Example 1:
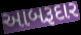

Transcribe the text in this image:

આબરૂદાર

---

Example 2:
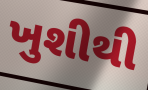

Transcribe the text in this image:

ખુશીથી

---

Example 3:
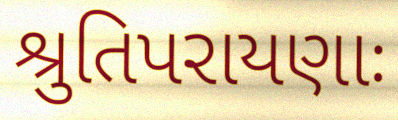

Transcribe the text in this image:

શ્રુતિપરાયણાઃ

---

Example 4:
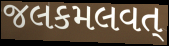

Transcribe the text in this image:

જલકમલવત્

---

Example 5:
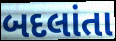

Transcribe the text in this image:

બદલાંતા